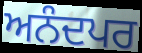
ਅਨੰਦਪਰ